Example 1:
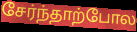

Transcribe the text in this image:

சேர்ந்தாற்போல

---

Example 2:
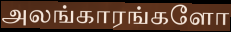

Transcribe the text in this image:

அலங்காரங்களோ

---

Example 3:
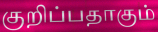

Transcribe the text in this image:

குறிப்பதாகும்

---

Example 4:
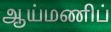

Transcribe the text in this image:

ஆய்மணிப்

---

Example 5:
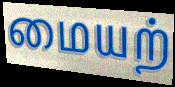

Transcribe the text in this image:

மையற்